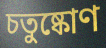
চতুষ্কোণ